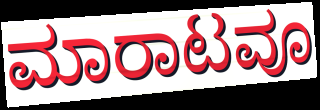
ಮಾರಾಟವೂ